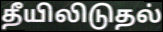
தீயிலிடுதல்